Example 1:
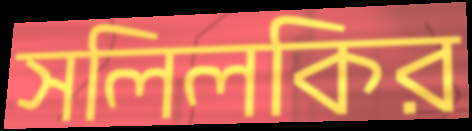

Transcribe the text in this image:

সলিলকির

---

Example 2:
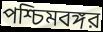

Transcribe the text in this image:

পশ্চিমবঙ্গর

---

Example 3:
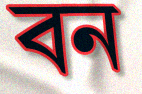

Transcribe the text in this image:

বন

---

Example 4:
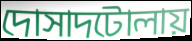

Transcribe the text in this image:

দোসাদটোলায়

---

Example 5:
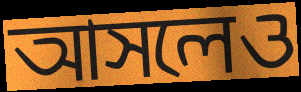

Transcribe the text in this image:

আসলেও